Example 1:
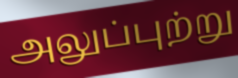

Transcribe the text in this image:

அலுப்புற்று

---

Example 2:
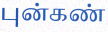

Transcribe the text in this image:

புன்கண்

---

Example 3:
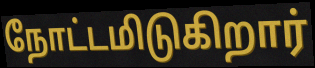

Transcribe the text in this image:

நோட்டமிடுகிறார்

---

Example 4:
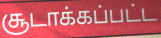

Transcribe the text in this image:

சூடாக்கப்பட்ட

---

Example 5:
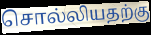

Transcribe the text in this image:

சொல்லியதற்கு